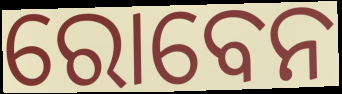
ରୋବେନ